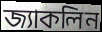
জ্যাকলিন